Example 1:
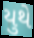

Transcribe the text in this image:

યુથે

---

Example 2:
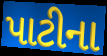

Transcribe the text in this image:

પાટીના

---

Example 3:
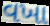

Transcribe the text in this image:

વખા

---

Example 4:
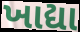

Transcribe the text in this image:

ખાદ્યા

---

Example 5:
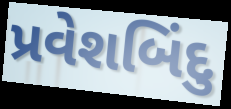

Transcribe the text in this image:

પ્રવેશબિંદુ